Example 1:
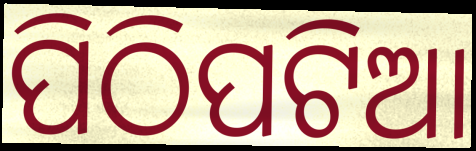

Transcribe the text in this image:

ପିଠିପଟିଆ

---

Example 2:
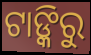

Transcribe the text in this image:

ଟାଙ୍କିରୁ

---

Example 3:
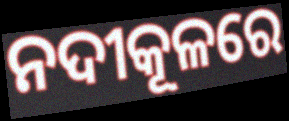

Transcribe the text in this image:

ନଦୀକୂଳରେ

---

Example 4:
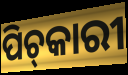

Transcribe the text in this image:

ପିଚ୍‌କାରୀ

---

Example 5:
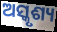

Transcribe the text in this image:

ଅସ୍କୃଶ୍ୟ